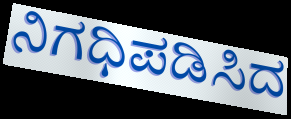
ನಿಗಧಿಪಡಿಸಿದ